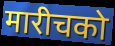
मारीचको